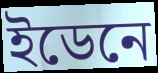
ইডেনে